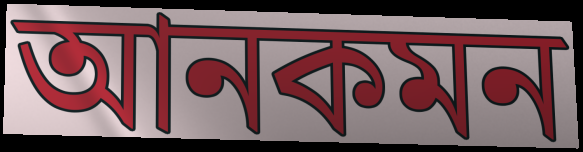
আনকমন